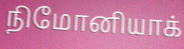
நிமோனியாக்